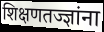
शिक्षणतज्ज्ञांना